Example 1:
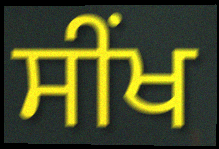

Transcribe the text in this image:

ਸੀਂਖ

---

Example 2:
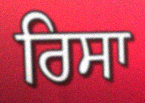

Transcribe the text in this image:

ਰਿਸਾ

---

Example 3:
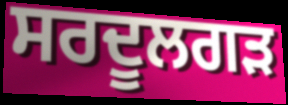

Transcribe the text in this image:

ਸਰਦੂਲਗੜ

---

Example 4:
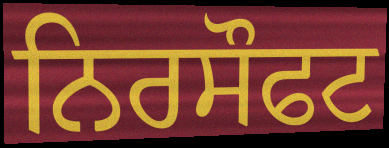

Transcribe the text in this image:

ਨਿਰਸੌਫਟ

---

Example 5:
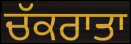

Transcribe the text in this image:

ਚੱਕਰਾਤਾ